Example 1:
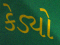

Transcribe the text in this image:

કેડ્યો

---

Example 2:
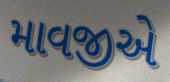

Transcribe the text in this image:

માવજીએ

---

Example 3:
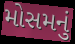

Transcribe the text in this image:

મોસમનું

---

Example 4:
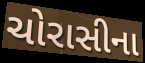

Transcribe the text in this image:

ચોરાસીના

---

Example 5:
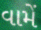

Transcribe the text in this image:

વામેં